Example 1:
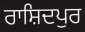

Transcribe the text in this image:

ਰਾਸ਼ਿਦਪੁਰ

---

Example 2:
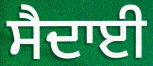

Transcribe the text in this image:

ਸੈਦਾਈ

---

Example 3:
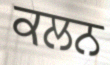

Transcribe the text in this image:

ਕਲਨ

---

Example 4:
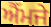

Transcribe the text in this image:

ਐੱਮਜੇ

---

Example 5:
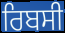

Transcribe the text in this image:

ਰਿਬਸੀ